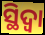
ସ୍ଥିଦ୍ଵା